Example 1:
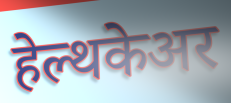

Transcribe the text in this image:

हेल्थकेअर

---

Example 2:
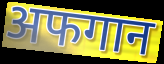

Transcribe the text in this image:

अफगान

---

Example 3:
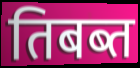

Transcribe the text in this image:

तिबब्त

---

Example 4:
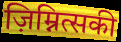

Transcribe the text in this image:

ज़िम्नित्सकी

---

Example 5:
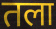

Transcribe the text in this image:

तला